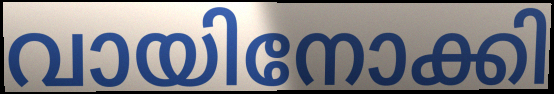
വായിനോക്കി